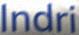
Indri